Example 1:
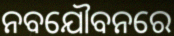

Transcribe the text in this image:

ନବଯୌବନରେ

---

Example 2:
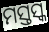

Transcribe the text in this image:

ମସ୍ତସ୍କ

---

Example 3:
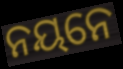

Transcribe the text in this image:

ନୟନେ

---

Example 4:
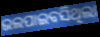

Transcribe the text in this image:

ଭଲପାଇବସିଥିଲା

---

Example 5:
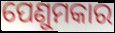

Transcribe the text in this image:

ପେଣୁମକାର